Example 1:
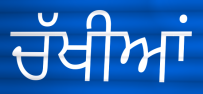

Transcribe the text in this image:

ਚੱਖੀਆਂ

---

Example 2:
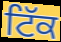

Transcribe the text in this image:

ਟਿੱਕ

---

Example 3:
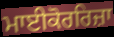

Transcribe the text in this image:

ਮਾਈਕੋਰਰਿਜ਼ਾ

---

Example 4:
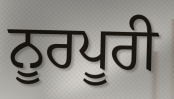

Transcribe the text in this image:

ਨੂਰਪੂਰੀ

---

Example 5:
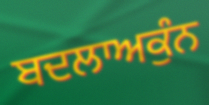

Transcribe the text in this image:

ਬਦਲਾਅਕੁੰਨ